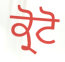
ਕ੍ਰੋਟੋ